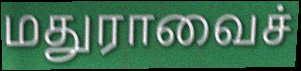
மதுராவைச்